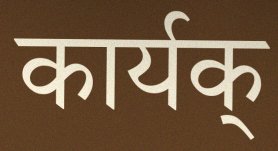
कार्यक्